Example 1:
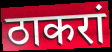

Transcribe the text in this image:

ठाकरां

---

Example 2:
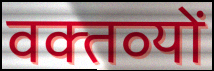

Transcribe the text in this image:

वक्‍तव्‍यों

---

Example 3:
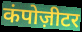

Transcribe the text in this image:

कंपोज़ीटर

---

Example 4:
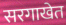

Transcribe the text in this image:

सरगाखेत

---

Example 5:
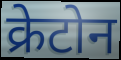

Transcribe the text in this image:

क्रेटोन